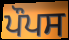
ਪੌਪਸ